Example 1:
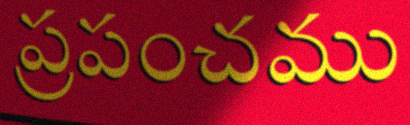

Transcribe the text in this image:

ప్రపంచము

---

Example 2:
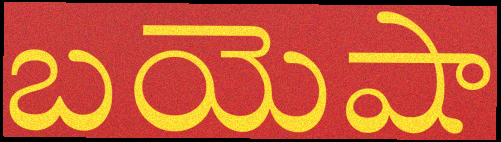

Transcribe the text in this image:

బయెషా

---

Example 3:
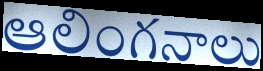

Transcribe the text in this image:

ఆలింగనాలు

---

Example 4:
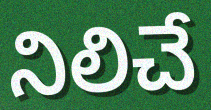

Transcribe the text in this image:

నిలిచే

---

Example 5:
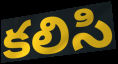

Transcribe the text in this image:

కలిసి